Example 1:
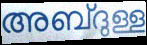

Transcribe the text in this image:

അബ്ദുള്ള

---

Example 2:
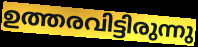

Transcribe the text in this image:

ഉത്തരവിട്ടിരുന്നു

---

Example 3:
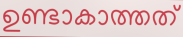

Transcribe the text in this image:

ഉണ്ടാകാത്തത്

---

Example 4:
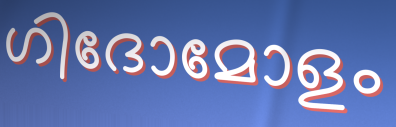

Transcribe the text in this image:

ഗിദോമോളം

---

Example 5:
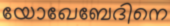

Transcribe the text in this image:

യോഖേബേദിനെ